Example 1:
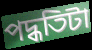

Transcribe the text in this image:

পদ্ধতিটা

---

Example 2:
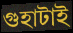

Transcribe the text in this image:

গুহাটাই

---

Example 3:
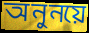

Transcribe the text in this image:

অনুনয়ে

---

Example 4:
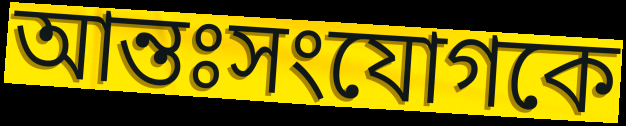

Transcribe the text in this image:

আন্তঃসংযোগকে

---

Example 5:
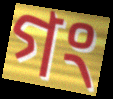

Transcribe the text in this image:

গং